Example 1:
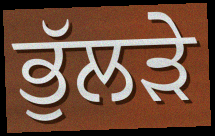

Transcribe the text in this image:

ਭੁੱਲੜੇ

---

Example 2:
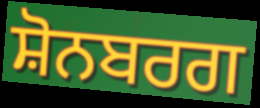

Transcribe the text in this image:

ਸ਼ੋਨਬਰਗ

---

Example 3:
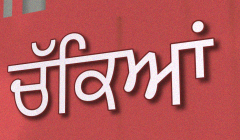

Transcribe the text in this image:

ਚੱਕਿਆਂ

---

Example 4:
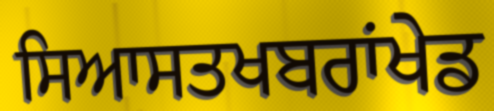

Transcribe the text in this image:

ਸਿਆਸਤਖਬਰਾਂਖੇਡ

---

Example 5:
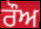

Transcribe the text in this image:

ਰੌਅ